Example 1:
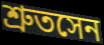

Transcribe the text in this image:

শ্রুতসেন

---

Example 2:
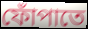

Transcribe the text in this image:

ফোঁপাতে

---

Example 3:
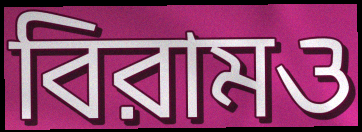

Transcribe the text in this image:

বিরামও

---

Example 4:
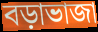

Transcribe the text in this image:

বড়াভাজা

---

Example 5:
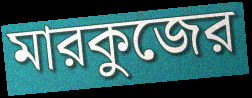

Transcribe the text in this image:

মারকুজের